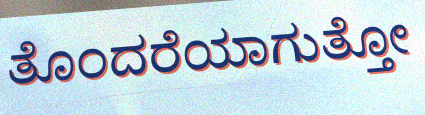
ತೊಂದರೆಯಾಗುತ್ತೋ